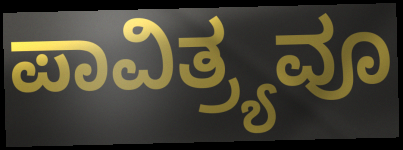
ಪಾವಿತ್ರ್ಯವೂ